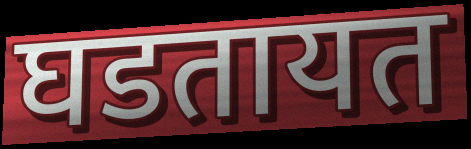
घडतायत